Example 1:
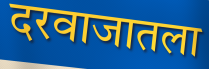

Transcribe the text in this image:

दरवाजातला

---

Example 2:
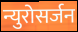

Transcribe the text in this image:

न्युरोसर्जन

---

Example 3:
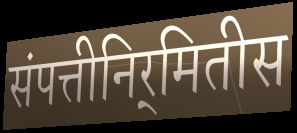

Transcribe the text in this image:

संपत्तीनिर्मितीस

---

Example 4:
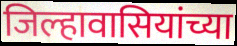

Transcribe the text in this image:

जिल्हावासियांच्या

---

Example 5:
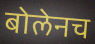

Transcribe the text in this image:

बोलेनच